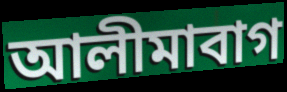
আলীমাবাগ